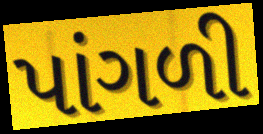
પાંગળી